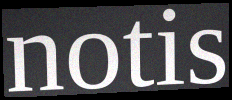
notis